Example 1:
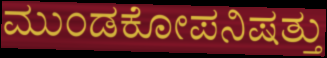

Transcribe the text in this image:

ಮುಂಡಕೋಪನಿಷತ್ತು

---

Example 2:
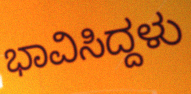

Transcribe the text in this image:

ಭಾವಿಸಿದ್ದಳು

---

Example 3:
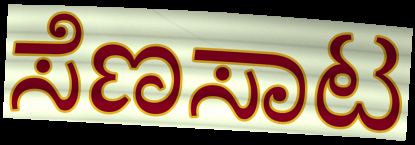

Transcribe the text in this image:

ಸೆಣಸಾಟ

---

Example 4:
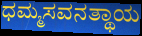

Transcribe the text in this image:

ಧಮ್ಮಸವನತ್ಥಾಯ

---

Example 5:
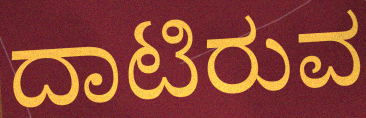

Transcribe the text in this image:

ದಾಟಿರುವ